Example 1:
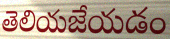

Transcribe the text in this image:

తెలియజేయడం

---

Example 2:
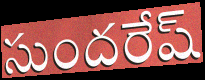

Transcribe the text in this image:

సుందరేష్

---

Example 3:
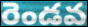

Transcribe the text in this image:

రెండవ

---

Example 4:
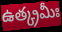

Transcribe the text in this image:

ఉత్క్రమీః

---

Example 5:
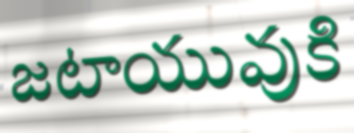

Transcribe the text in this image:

జటాయువుకి